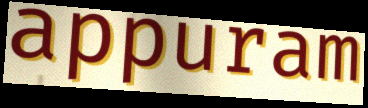
appuram